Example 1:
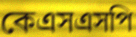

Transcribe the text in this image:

কেএসএসপি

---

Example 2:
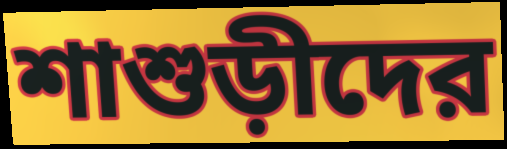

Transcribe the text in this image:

শাশুড়ীদের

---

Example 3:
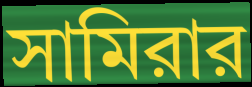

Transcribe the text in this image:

সামিরার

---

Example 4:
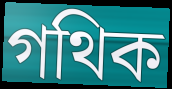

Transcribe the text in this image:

গথিক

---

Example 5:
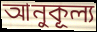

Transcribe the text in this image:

আনুকূল্য